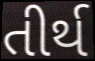
તીર્થ